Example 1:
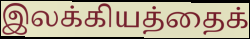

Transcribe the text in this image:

இலக்கியத்தைக்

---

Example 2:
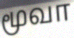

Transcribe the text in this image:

மூவா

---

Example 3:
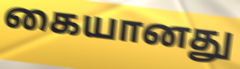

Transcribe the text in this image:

கையானது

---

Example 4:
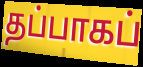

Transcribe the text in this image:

தப்பாகப்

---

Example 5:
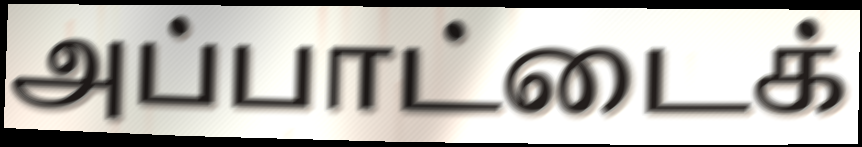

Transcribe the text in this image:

அப்பாட்டைக்